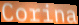
Corina